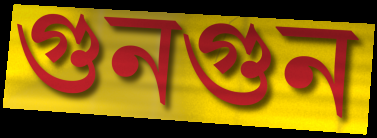
গুনগুন